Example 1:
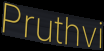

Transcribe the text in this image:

Pruthvi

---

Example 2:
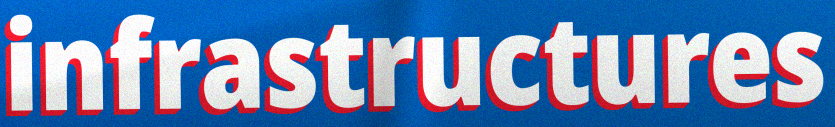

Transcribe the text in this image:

infrastructures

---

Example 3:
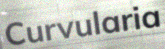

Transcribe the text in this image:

Curvularia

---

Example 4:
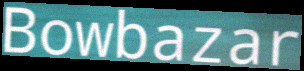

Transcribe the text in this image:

Bowbazar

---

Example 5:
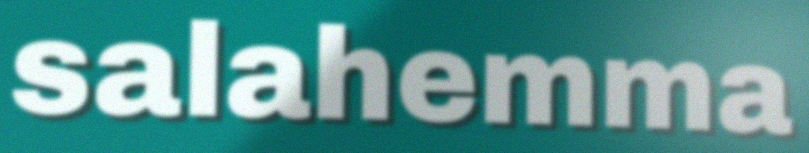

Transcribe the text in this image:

salahemma